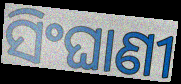
ସିଂଘାଣୀ